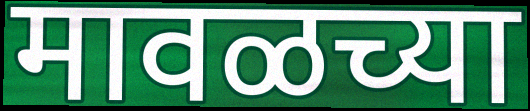
मावळच्या